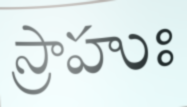
స్రాహుః